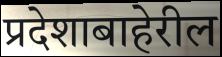
प्रदेशाबाहेरील